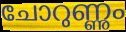
ചോറുണ്ണും